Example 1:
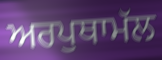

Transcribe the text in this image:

ਅਰਪੁਥਾਮੱਲ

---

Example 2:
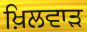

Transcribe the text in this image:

ਖ਼ਿਲਵਾੜ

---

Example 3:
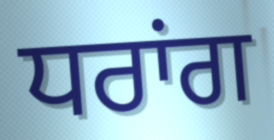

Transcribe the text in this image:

ਧਰਾਂਗ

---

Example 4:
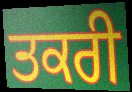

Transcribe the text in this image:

ਤਕਰੀ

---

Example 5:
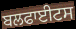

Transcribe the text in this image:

ਬਲਫਾਈਟਸ